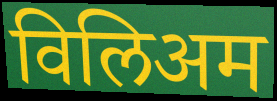
विलिअम